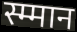
स्म्मान